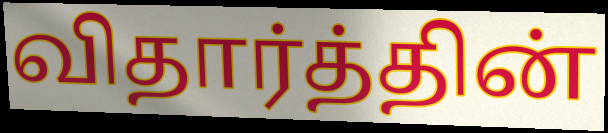
விதார்த்தின்